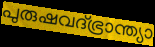
പുരുഷവദ്ഭ്രാന്ത്യാ